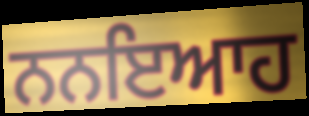
ਨਨਇਆਹ